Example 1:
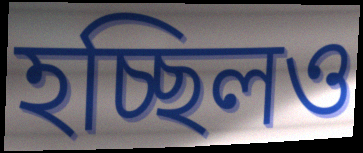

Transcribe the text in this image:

হচ্ছিলও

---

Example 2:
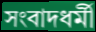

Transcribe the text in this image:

সংবাদধর্মী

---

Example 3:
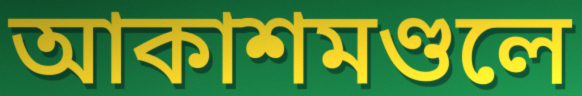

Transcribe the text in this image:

আকাশমণ্ডলে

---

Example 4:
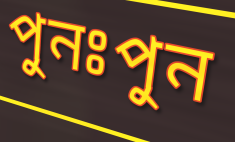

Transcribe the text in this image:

পুনঃপুন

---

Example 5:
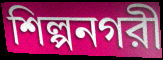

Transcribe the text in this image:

শিল্পনগরী